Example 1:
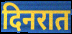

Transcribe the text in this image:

दिनरात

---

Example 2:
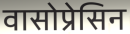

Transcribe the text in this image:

वासोप्रेसिन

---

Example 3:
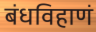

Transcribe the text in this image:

बंधविहाणं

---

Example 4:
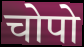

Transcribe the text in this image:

चोपो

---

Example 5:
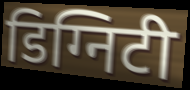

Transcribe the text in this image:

डिग्निटी